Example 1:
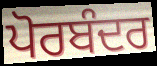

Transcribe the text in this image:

ਪੋਰਬੰਦਰ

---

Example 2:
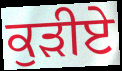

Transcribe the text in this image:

ਕੁੜੀਏ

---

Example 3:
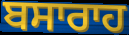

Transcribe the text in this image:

ਬਸਾਰਾਹ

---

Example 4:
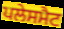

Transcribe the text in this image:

ਪਲੇਸਮੈਟ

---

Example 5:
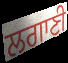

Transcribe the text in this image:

ਲਗਾਣੀ